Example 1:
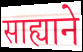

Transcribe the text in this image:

साह्याने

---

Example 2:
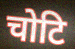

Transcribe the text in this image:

चोटि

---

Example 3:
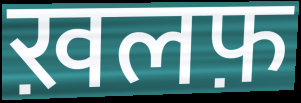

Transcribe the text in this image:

ख़लफ़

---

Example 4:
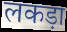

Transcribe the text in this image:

लकड़ा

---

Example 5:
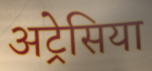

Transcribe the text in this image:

अट्रेसिया